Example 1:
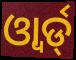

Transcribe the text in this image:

ଓ୍ୱାର୍ଡ୍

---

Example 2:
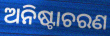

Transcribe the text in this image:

ଅନିଷ୍ଟାଚରଣ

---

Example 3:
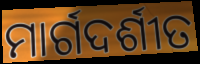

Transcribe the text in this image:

ମାର୍ଗଦର୍ଶୀତ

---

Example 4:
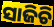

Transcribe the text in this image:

ସାଜିଚି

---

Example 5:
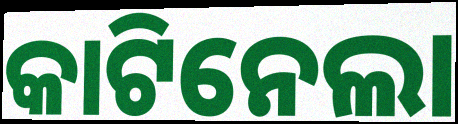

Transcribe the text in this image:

କାଟିନେଲା